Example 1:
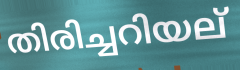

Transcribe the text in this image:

തിരിച്ചറിയല്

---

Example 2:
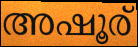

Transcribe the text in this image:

അഷൂര്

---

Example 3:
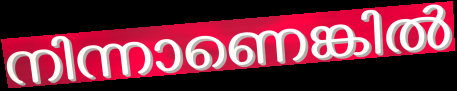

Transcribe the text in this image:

നിന്നാണെങ്കിൽ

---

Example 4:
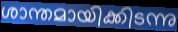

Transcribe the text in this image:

ശാന്തമായിക്കിടന്നു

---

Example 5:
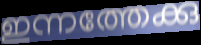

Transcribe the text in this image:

ഇന്നത്തേക്കു